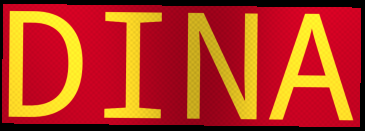
DINA